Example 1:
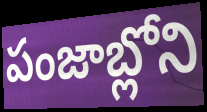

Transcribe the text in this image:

పంజాబ్లోని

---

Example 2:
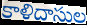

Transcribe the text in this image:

కాళిదాసుల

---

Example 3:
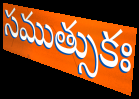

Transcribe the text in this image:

సముత్సుకః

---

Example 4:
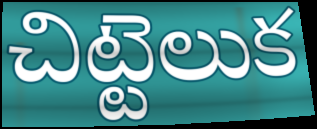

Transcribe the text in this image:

చిట్టెలుక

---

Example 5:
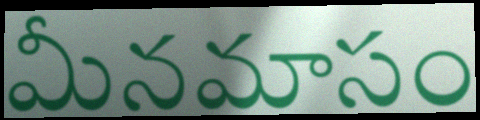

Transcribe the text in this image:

మీనమాసం